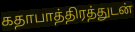
கதாபாத்திரத்துடன்